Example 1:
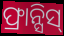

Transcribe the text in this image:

ଫ୍ରାନ୍ସିସ୍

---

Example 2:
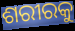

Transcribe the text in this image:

ଶରୀରକୁ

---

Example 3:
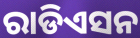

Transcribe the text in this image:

ରାଡିଏସନ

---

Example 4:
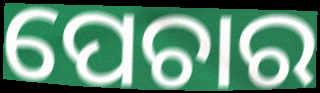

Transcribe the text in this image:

ପେଚାର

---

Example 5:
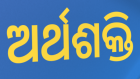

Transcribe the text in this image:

ଅର୍ଥଶକ୍ତି